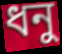
ধনু